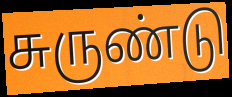
சுருண்டு